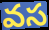
వస